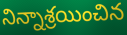
నిన్నాశ్రయించిన